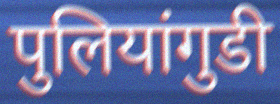
पुलियांगुडी